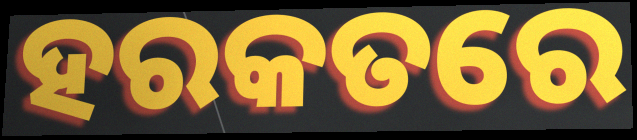
ହରକତରେ